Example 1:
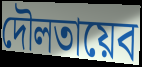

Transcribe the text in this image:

দৌলতায়েব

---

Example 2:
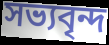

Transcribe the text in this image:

সভ্যবৃন্দ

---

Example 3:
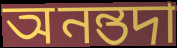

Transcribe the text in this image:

অনন্তদা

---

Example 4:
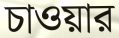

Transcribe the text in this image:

চাওয়ার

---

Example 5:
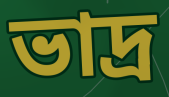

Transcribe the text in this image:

ভাদ্র